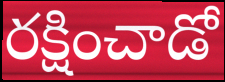
రక్షించాడో